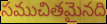
సముచితమైనది